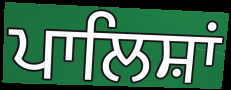
ਪਾਲਿਸ਼ਾਂ